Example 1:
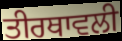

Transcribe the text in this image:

ਤੀਰਥਾਵਲੀ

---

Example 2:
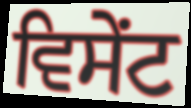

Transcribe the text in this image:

ਵਿਸੇਂਟ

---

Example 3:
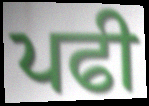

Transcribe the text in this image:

ਪਫੀ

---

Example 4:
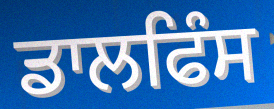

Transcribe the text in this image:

ਡਾਲਫਿੰਸ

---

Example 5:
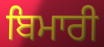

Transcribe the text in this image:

ਬਿਮਾਰੀ